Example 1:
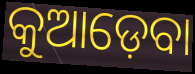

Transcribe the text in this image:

କୁଆଡ଼େବା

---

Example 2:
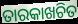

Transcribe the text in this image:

ତାରକାଖଚିତ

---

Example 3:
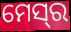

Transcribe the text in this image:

ମେସ୍‌ର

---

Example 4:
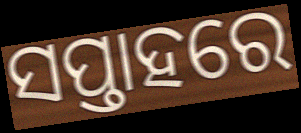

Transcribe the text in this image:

ସପ୍ତାହରେ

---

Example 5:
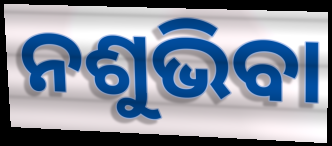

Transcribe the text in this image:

ନଶୁଭିବା